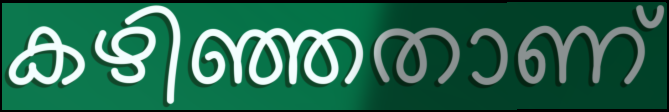
കഴിഞ്ഞതാണ്